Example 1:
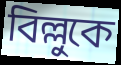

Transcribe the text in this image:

বিল্লুকে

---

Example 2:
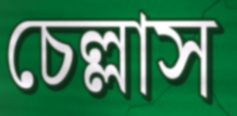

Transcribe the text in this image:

চেল্লাস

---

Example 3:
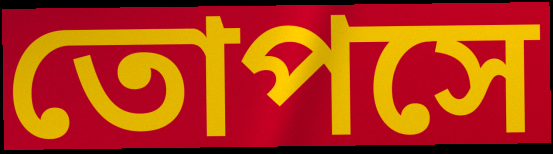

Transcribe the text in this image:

তোপসে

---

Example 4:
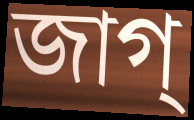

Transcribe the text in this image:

জাগ্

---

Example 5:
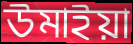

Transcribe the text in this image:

উমাইয়া